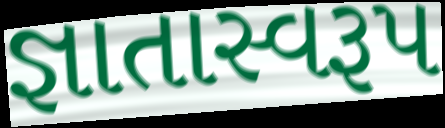
જ્ઞાતાસ્વરૂપ